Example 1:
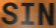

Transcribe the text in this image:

SIN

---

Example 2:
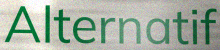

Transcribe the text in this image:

Alternatif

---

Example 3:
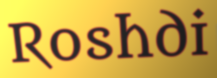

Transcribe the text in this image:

Roshdi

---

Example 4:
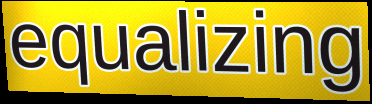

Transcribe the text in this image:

equalizing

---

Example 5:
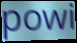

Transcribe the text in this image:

powi